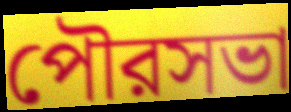
পৌরসভা